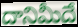
దానిమీదే